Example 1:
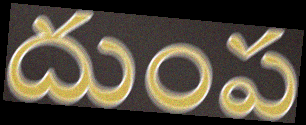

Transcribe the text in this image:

దుంప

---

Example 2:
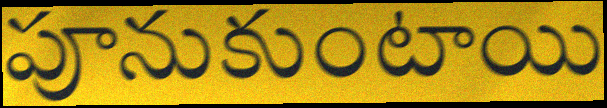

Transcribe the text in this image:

పూనుకుంటాయి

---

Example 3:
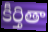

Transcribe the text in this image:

కీర్తితా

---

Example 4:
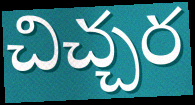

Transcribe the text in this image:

చిచ్చర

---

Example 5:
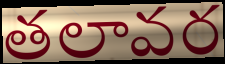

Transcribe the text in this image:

తలావర